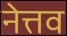
नेत्तव